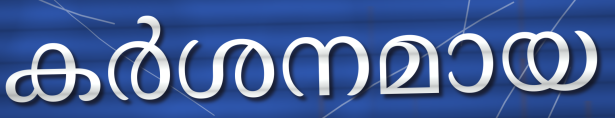
കർശനമായ